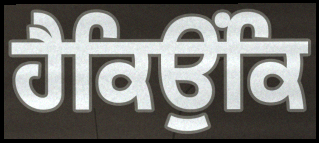
ਹੈਕਿਉਂਕਿ